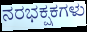
ನರಭಕ್ಷಕಗಳು